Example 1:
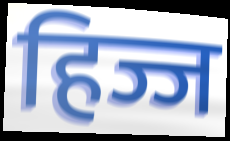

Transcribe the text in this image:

हिज्ज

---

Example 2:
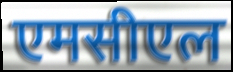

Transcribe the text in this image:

एमसीएल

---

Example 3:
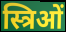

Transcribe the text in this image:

स्त्रिओं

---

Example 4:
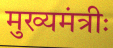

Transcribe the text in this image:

मुख्यमंत्रीः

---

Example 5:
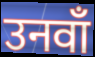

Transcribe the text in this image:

उनवाँ